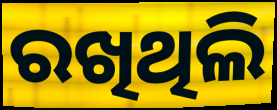
ରଖିଥିଲି